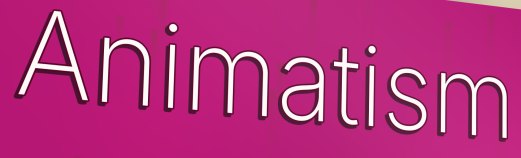
Animatism